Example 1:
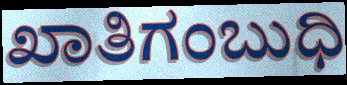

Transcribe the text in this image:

ಖಾತಿಗಂಬುಧಿ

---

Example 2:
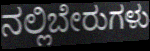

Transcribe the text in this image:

ನಲ್ಲಿಬೇರುಗಳು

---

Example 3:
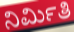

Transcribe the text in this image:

ನಿರ್ಮಿತಿ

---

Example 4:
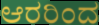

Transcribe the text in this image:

ಆರರಿಂದ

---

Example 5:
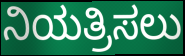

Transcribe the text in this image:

ನಿಯತ್ರಿಸಲು